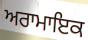
ਅਰਾਮਾਇਕ